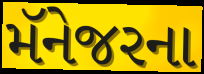
મૅનેજરના